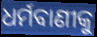
ଧର୍ମବାଣୀକୁ